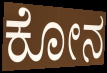
ಕೋನ